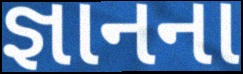
જ્ઞાનના